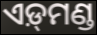
ଏଡ଼୍‌ମଣ୍ଡ